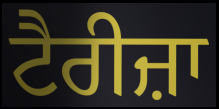
ਟੈਰੀਜ਼ਾ